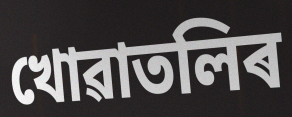
খোৱাতলিৰ